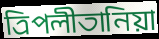
ত্রিপলীতানিয়া